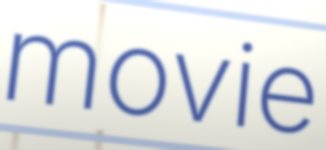
movie